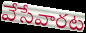
వేసేవారట